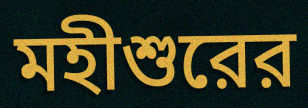
মহীশুরের